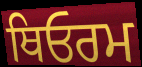
ਥਿਓਰਮ